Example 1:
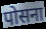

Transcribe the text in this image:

पोसना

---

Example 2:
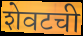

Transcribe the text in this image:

शेवटची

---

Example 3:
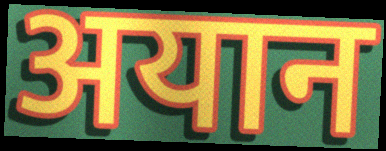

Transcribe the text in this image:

अयान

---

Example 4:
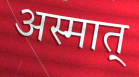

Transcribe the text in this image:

अस्मात्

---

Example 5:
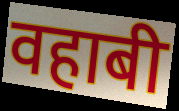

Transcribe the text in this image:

वहाबी